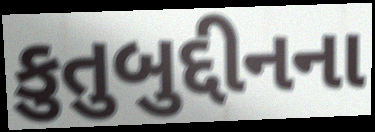
કુતુબુદ્દીનના